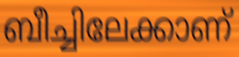
ബീച്ചിലേക്കാണ്